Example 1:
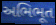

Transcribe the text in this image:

અભિભૂત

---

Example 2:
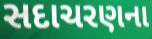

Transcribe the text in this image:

સદાચરણના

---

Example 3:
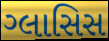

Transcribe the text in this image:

ગ્લાસિસ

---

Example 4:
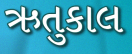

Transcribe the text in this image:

ઋતુકાલ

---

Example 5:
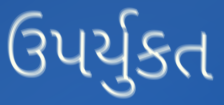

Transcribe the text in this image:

ઉપર્યુકત